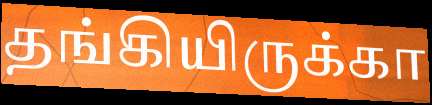
தங்கியிருக்கா